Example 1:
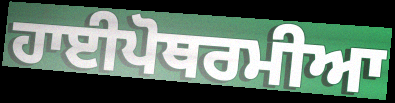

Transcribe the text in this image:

ਹਾਈਪੋਥਰਮੀਆ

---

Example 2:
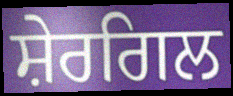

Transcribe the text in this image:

ਸ਼ੇਰਗਿਲ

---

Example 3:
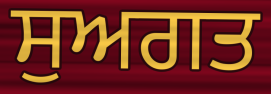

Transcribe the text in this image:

ਸੁਅਗਤ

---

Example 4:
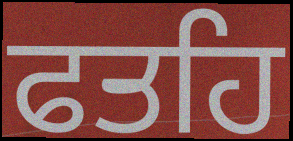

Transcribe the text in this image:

ਫਤਹਿ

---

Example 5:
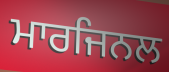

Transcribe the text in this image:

ਮਾਰਜਿਨਲ